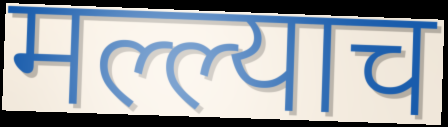
मल्ल्याच